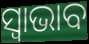
ସ୍ୱାଭାବ